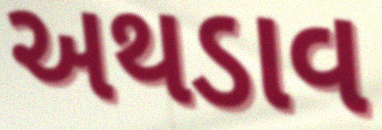
અથડાવ